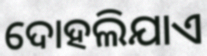
ଦୋହଲିଯାଏ